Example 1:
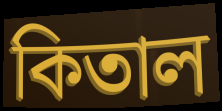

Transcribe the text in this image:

কিতাল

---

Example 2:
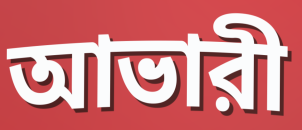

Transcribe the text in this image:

আভারী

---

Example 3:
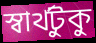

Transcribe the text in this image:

স্বার্থটুকু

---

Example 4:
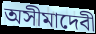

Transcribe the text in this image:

অসীমাদেবী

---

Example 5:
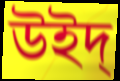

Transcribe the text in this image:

উইদ্